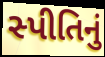
સ્પીતિનું